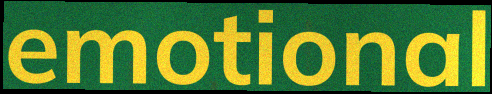
emotional